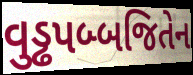
વુડ્ઢપબ્બજિતેન